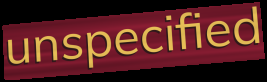
unspecified